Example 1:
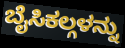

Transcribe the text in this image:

ಬೈಸಿಕಲ್ಗಳನ್ನು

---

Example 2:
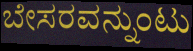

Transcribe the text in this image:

ಬೇಸರವನ್ನುಂಟು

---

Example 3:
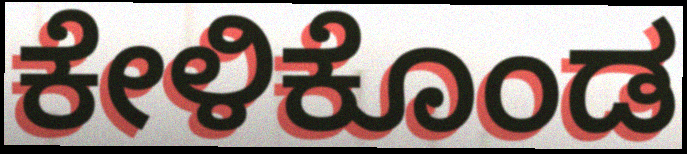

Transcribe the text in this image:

ಕೇಳಿಕೊಂಡ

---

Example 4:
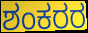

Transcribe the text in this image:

ಶಂಕರರ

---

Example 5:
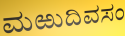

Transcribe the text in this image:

ಮಱುದಿವಸಂ